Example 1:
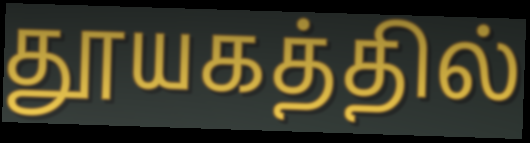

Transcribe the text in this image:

தூயகத்தில்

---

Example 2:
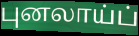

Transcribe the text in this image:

புனலாய்ப்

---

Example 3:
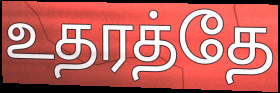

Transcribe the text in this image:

உதரத்தே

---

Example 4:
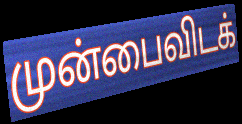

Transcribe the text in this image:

முன்பைவிடக்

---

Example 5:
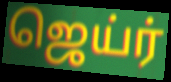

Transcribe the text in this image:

ஜெய்ர்